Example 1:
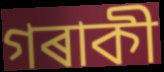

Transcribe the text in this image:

গৰাকী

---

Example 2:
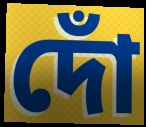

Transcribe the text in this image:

দোঁ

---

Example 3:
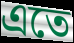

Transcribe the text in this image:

এতে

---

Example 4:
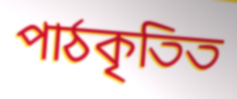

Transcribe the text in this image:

পাঠকৃতিত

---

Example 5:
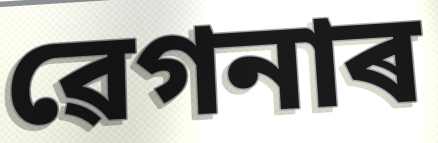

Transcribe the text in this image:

ৱেগনাৰ